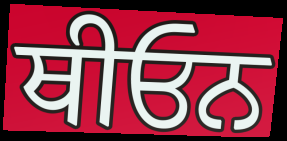
ਥੀਓਨ